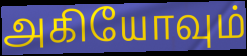
அகியோவும்